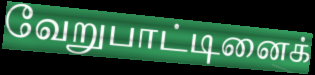
வேறுபாட்டினைக்